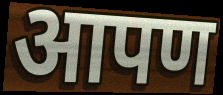
आपण